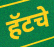
हॅटचे